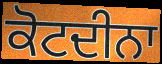
ਕੋਟਦੀਨਾ